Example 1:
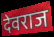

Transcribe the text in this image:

देवराज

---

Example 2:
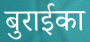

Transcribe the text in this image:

बुराईका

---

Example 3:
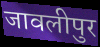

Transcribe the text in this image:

जावलीपुर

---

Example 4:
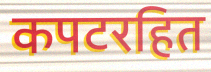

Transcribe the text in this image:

कपटरहित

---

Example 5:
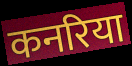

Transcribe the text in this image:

कनरिया